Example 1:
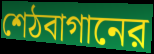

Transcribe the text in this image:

শেঠবাগানের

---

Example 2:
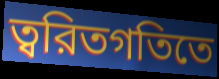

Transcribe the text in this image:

ত্বরিতগতিতে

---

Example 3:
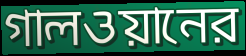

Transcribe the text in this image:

গালওয়ানের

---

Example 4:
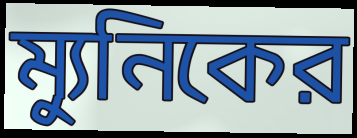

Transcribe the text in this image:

ম্যুনিকের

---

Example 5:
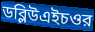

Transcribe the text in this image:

ডব্লিউএইচওর